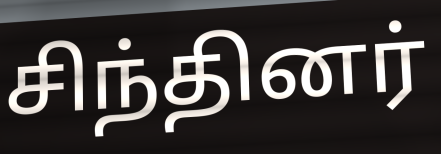
சிந்தினர்